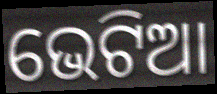
ଭେଟିଆ